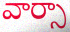
వార్సా